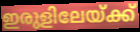
ഇരുളിലേയ്ക്ക്